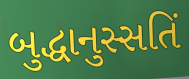
બુદ્ધાનુસ્સતિં